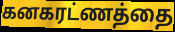
கனகரட்ணத்தை